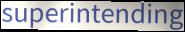
superintending